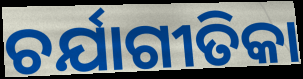
ଚର୍ଯାଗୀତିକା